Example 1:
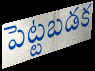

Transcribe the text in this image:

పెట్టబడక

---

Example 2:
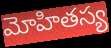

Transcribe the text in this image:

మోహితస్య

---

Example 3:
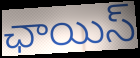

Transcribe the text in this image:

ఛాయిస్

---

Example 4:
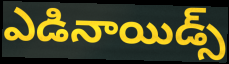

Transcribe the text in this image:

ఎడినాయిడ్స్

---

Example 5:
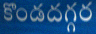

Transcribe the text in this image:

కొండదగ్గర